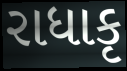
રાધાકૃ